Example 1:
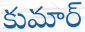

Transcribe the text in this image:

కుమార్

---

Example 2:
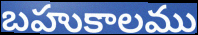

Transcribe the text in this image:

బహుకాలము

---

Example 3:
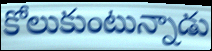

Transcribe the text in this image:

కోలుకుంటున్నాడు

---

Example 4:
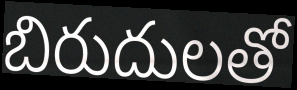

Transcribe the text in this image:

బిరుదులతో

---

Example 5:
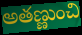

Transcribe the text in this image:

అతణ్ణుంచి